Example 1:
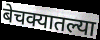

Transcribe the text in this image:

बेचक्यातल्या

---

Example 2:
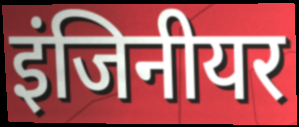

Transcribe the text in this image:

इंजिनीयर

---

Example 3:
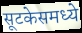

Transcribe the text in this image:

सूटकेसमध्ये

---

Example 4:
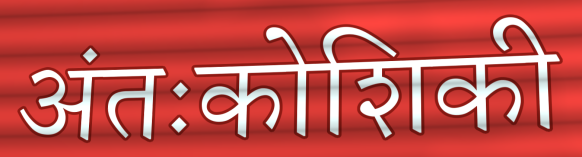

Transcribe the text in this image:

अंतःकोशिकी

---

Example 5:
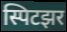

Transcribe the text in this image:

स्पिटझर